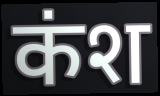
कंश